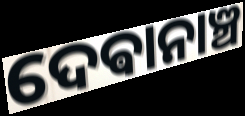
ଦେଵାନାଞ୍ଚ